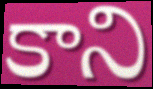
కాని